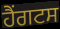
ਹੈਂਗਟਸ